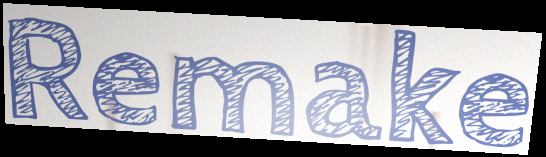
Remake